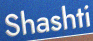
Shashti